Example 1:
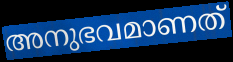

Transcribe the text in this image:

അനുഭവമാണത്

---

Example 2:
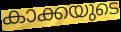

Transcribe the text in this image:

കാക്കയുടെ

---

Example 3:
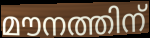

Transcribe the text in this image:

മൗനത്തിന്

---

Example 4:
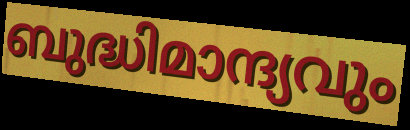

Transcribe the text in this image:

ബുദ്ധിമാന്ദ്യവും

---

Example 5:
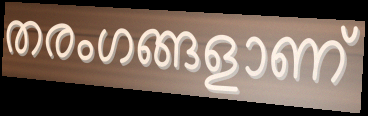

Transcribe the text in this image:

തരംഗങ്ങളാണ്